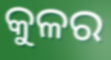
କୁଳର